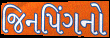
જિનપિંગનો